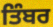
ਤਿੰਬਰ